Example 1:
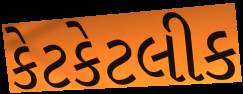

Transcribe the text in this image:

કેટકેટલીક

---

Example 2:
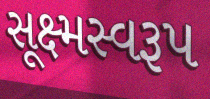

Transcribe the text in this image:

સૂક્ષ્મસ્વરૂપ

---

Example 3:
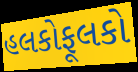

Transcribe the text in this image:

હલકોફૂલકો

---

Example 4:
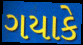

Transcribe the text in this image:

ગયાકે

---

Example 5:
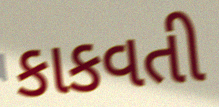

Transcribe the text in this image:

કાકવતી